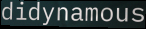
didynamous